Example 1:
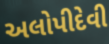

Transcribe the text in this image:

અલોપીદેવી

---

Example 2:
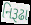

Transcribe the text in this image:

નિરૂઢા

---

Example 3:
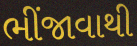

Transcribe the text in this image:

ભીંજાવાથી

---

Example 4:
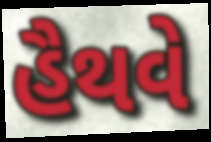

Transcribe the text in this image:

હૈથવે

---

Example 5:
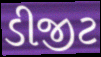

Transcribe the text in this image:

ડીજીટ